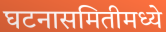
घटनासमितीमध्ये